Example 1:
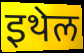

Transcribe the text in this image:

इथेल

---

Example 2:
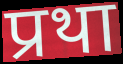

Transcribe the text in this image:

प्रथा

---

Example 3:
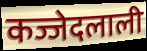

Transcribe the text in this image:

कज्जेदलाली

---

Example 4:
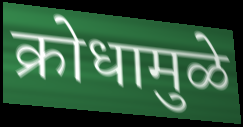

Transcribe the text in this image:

क्रोधामुळे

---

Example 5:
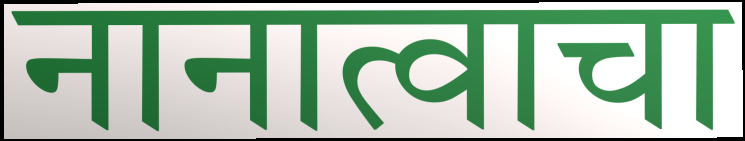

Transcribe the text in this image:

नानात्वाचा